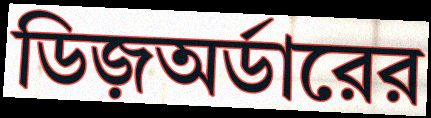
ডিজ়অর্ডারের